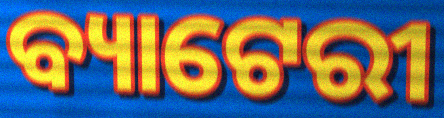
ବ୍ୟାଟେରୀ